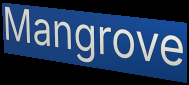
Mangrove